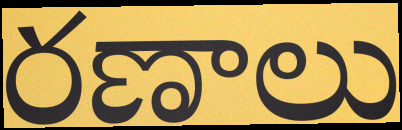
రణాలు